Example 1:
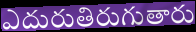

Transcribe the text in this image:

ఎదురుతిరుగుతారు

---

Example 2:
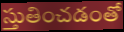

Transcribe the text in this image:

స్తుతించడంతో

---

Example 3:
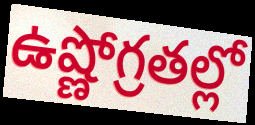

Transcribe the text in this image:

ఉష్ణోగ్రతల్లో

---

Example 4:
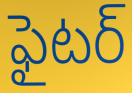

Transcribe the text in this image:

ఫైటర్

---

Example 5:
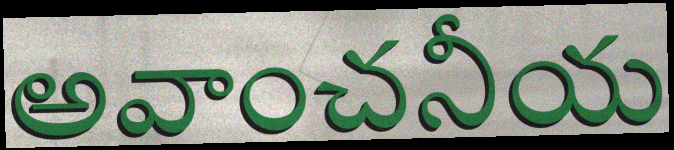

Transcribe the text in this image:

అవాంచనీయ